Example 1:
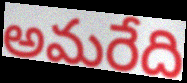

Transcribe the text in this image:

అమరేది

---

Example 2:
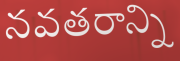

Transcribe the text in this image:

నవతరాన్ని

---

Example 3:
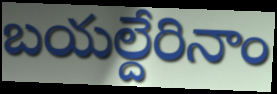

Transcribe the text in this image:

బయల్దేరినాం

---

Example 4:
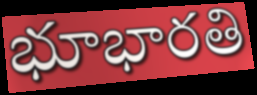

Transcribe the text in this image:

భూభారతి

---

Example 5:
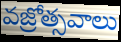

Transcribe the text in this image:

వజ్రోత్సవాలు